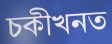
চকীখনত